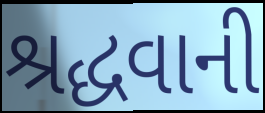
શ્રદ્ધવાની